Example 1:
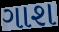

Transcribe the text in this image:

ગાશ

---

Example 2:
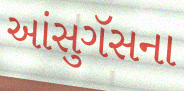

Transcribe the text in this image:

આંસુગૅસના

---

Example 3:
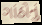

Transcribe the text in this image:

ગાંઠોનું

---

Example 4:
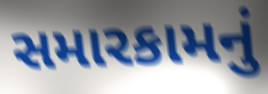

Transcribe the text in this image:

સમારકામનું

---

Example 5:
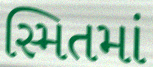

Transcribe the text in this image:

સ્મિતમાં